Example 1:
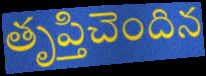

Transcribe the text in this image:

తృప్తిచెందిన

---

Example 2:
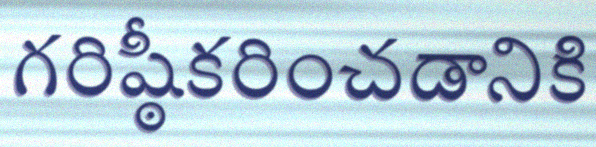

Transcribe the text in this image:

గరిష్ఠీకరించడానికి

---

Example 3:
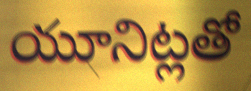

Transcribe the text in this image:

యూనిట్లతో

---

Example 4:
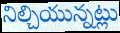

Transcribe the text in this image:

నిల్చియున్నట్లు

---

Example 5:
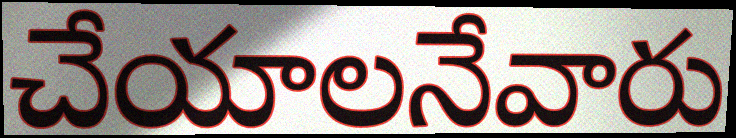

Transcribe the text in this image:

చేయాలనేవారు